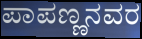
ಪಾಪಣ್ಣನವರ